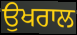
ਉਖਰਾਲ